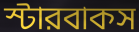
স্টারবাকস